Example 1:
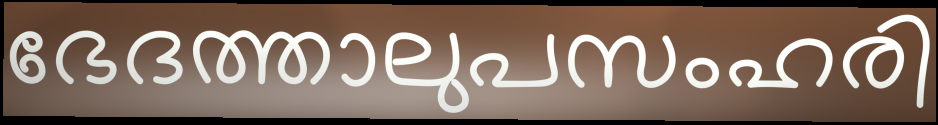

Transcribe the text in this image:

ഭേദത്താലുപസംഹരി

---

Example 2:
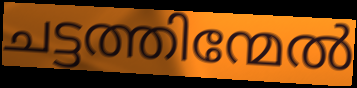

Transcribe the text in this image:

ചട്ടത്തിന്മേൽ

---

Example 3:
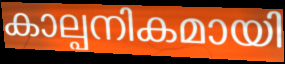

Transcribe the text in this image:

കാല്പനികമായി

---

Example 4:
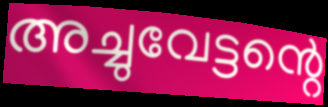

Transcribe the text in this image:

അച്ചുവേട്ടന്റെ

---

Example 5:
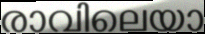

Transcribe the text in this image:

രാവിലെയാ